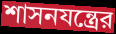
শাসনযন্ত্রের